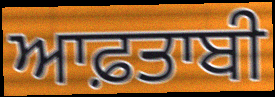
ਆਫ਼ਤਾਬੀ